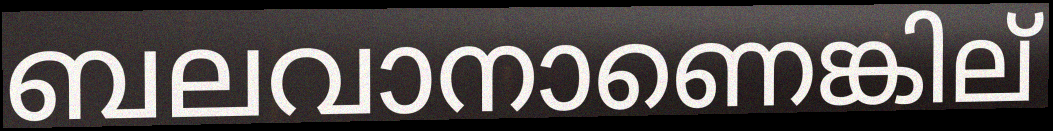
ബലവാനാണെങ്കില്